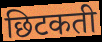
छिटकती